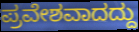
ಪ್ರವೇಶವಾದದ್ದು